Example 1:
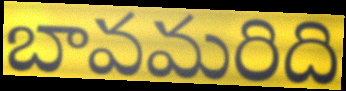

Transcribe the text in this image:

బావమరిది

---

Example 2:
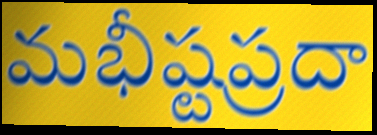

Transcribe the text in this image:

మభీష్టప్రదా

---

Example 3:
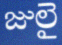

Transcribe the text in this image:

జులై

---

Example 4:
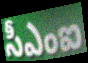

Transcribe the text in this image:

సీఎంఐ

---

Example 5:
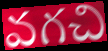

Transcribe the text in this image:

వగచి